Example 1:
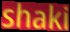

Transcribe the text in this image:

shaki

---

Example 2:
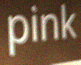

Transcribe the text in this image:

pink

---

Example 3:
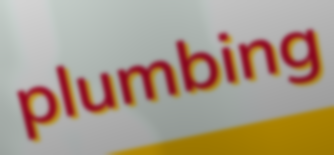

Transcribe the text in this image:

plumbing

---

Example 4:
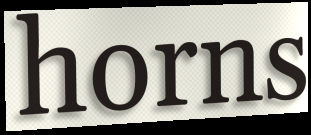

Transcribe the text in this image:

horns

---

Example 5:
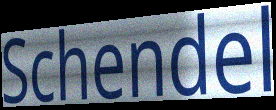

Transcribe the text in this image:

Schendel